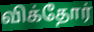
விக்தோர்